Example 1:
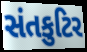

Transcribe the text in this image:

સંતકુટિર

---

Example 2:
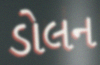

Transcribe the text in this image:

ડોલન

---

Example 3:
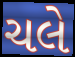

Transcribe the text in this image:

ચલે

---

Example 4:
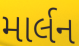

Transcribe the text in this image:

માર્લન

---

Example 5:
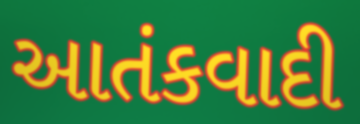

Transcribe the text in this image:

આતંકવાદી